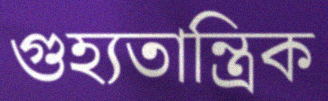
গুহ্যতান্ত্ৰিক